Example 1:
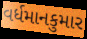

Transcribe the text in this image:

વર્ધમાનકુમાર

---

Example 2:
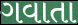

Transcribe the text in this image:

ગવાતા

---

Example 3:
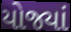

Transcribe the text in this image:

યોજ્યાં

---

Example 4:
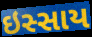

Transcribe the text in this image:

ઇસ્સાય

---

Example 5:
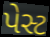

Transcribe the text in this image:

પેસ્ટ